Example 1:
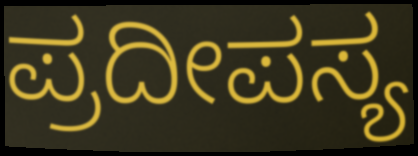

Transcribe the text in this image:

ಪ್ರದೀಪಸ್ಯ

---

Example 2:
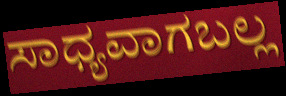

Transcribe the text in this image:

ಸಾಧ್ಯವಾಗಬಲ್ಲ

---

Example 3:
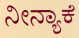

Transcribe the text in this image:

ನೀನ್ಯಾಕೆ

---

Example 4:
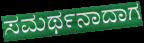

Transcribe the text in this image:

ಸಮರ್ಥನಾದಾಗ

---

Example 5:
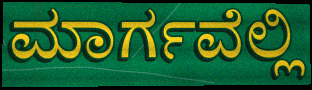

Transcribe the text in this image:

ಮಾರ್ಗವೆಲ್ಲಿ